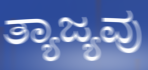
ತ್ಯಾಜ್ಯವು